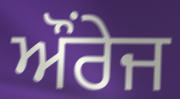
ਔਂਰੇਜ